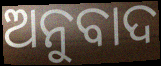
ଅନୁବାଦ